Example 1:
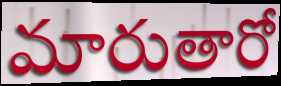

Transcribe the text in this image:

మారుతారో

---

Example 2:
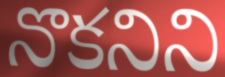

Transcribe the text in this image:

నొకనిని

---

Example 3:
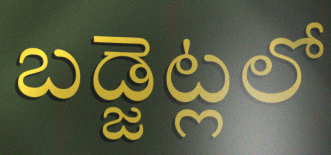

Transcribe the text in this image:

బడ్జెట్లలో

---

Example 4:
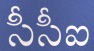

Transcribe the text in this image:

సీసీఐ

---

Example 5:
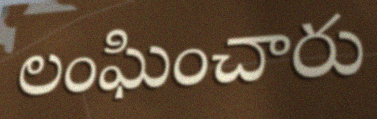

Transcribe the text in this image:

లంఘించారు